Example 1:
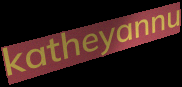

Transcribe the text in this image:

katheyannu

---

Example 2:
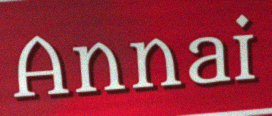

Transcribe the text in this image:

Annai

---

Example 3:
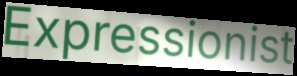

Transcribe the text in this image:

Expressionist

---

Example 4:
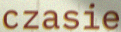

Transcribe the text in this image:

czasie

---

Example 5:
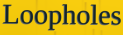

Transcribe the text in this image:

Loopholes